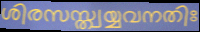
ശിരസസ്ത്വയ്യവനതിഃ